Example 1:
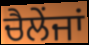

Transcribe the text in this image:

ਚੈਲੇਂਜਾਂ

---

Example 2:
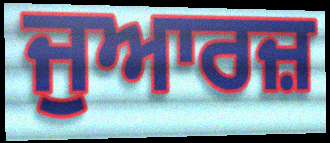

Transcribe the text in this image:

ਜੁਆਰਜ਼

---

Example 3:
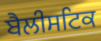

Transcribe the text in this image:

ਬੈਲੀਸਟਿਕ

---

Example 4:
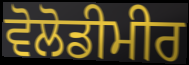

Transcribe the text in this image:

ਵੋਲੋਡੀਮੀਰ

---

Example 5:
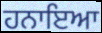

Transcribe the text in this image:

ਹਨਾਇਆ